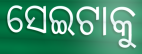
ସେଇଟାକୁ